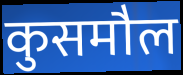
कुसमौल